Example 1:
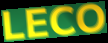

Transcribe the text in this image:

LECO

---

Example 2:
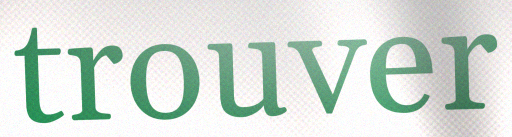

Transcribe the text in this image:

trouver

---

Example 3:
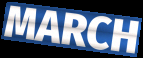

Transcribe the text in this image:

MARCH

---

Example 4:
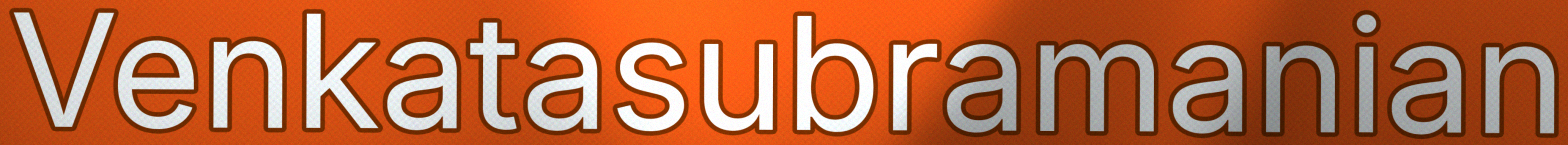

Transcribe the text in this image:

Venkatasubramanian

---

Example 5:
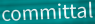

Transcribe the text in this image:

committal